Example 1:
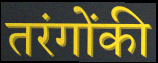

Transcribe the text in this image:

तरंगोंकी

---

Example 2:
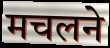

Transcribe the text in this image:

मचलने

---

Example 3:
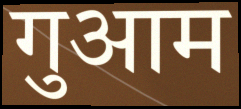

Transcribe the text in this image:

गुआम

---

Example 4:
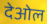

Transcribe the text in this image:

देओल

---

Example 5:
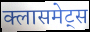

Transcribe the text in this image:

क्लासमेट्स